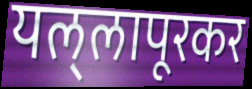
यल्लापूरकर